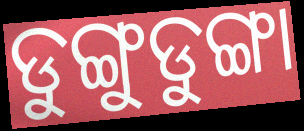
ଡୁଙ୍ଗୁଡୁଙ୍ଗା